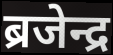
ब्रजेन्द्र